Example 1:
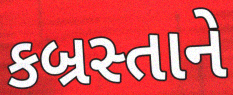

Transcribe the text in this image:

કબ્રસ્તાને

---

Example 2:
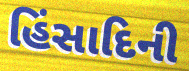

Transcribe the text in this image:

હિંસાદિની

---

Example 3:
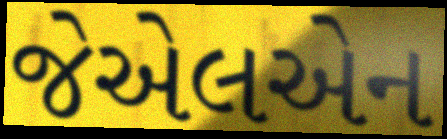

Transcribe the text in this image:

જેએલએન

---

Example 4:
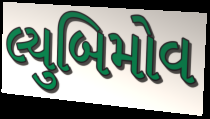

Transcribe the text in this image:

લ્યુબિમોવ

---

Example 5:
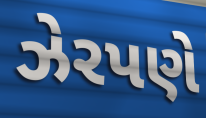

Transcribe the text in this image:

ઝેરપણે